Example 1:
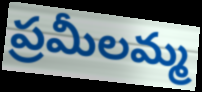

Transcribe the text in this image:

ప్రమీలమ్మ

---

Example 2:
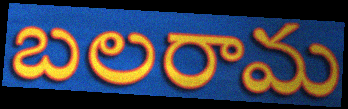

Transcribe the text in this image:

బలరామ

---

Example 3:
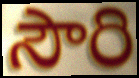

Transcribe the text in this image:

సౌరి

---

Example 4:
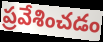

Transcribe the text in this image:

ప్రవేశించడం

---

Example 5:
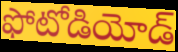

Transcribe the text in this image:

ఫోటోడియోడ్